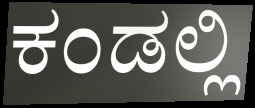
ಕಂಡಲ್ಲಿ